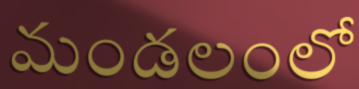
మండలంలో